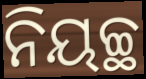
ନିୟଚ୍ଛ